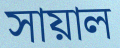
সায়াল